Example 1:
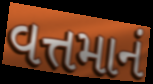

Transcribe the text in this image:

વત્તમાનં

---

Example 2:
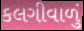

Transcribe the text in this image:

કલગીવાળું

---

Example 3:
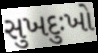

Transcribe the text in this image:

સુખદુઃખો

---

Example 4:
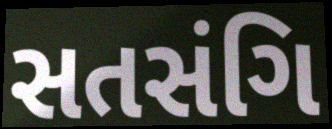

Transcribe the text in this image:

સતસંગિ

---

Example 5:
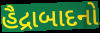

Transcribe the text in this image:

હૈદ્રાબાદનો